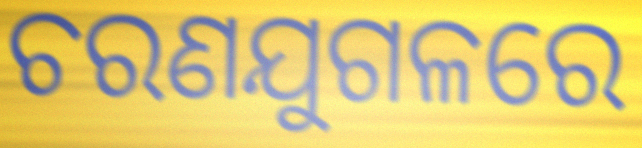
ଚରଣଯୁଗଳରେ